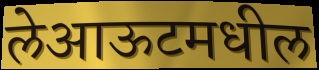
लेआऊटमधील